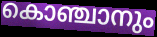
കൊഞ്ചാനും